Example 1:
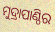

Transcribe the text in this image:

ମୁଦ୍ରାପାଣ୍ଠିର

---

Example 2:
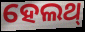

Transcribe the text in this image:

ହେଲଥ୍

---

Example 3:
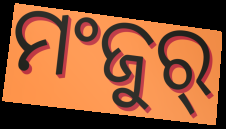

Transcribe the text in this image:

ମଂଜୁର୍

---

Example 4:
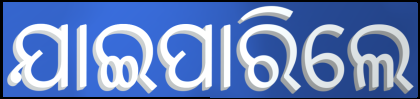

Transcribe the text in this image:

ଯାଇପାରିଲେ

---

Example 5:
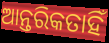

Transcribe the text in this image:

ଆନ୍ତରିକତାହିଁ